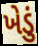
ખેડું